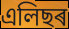
এলিছৰ